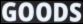
GOODS